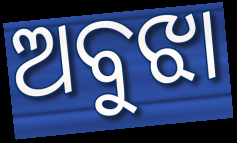
ଅବୁଝା